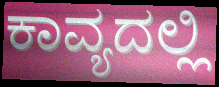
ಕಾವ್ಯದಲ್ಲಿ